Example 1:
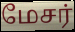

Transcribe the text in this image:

மேசர்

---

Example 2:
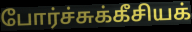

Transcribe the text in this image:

போர்ச்சுக்கீசியக்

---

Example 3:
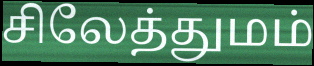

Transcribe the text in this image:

சிலேத்துமம்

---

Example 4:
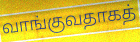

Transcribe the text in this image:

வாங்குவதாகத்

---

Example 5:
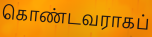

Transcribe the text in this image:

கொண்டவராகப்